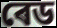
ৰেড